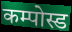
कम्पोस्ड